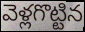
వెళ్లగొట్టిన